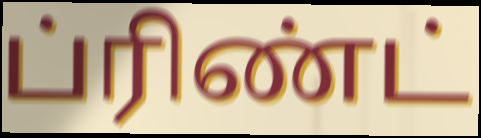
ப்ரிண்ட்